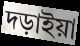
দড়াইয়া